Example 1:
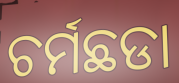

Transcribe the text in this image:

ଚର୍ମଛଡା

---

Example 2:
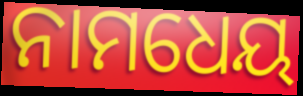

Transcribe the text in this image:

ନାମଧେୟ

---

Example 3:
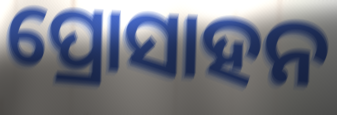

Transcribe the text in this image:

ପ୍ରୋସାହନ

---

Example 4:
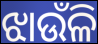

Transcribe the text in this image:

ଝାଉଁଳି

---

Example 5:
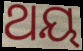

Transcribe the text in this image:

ଥୟ